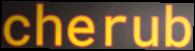
cherub